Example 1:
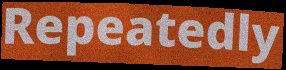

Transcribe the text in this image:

Repeatedly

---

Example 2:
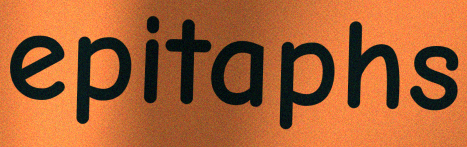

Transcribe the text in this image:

epitaphs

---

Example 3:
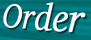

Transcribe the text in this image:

Order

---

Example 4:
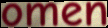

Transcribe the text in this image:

omen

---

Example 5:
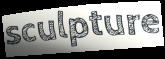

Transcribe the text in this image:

sculpture